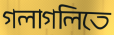
গলাগলিতে